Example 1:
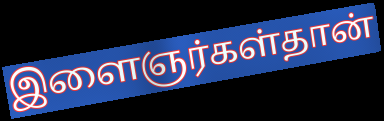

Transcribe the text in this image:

இளைஞர்கள்தான்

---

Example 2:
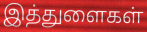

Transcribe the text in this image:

இத்துளைகள்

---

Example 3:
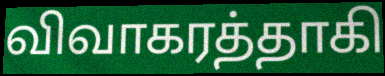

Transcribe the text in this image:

விவாகரத்தாகி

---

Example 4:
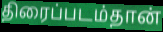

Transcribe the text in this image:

திரைப்படம்தான்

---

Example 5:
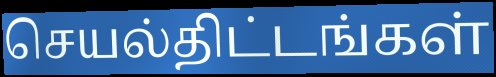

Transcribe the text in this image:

செயல்திட்டங்கள்